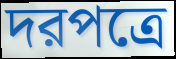
দরপত্রে